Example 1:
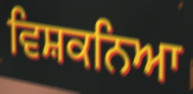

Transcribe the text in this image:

ਵਿਸ਼ਕਨਿਆ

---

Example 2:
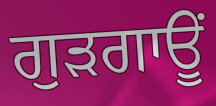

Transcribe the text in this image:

ਗੁੜਗਾਊਂ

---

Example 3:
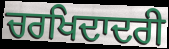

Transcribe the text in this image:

ਚਰਖਿਦਾਦਰੀ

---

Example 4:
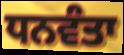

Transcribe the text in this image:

ਧਨਵੰਤਾ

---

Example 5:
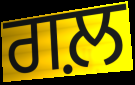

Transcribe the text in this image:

ਗਲ਼